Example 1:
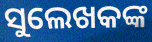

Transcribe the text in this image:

ସୁଲେଖକଙ୍କ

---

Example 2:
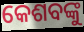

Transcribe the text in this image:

କେଶବଙ୍କୁ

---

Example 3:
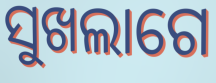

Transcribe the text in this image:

ସୁଖଲାଗେ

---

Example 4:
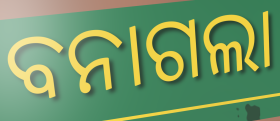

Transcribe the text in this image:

ବନାଗଲା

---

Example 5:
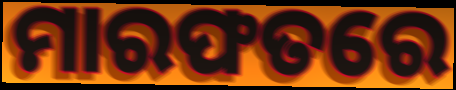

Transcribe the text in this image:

ମାରଫତରେ